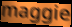
maggie